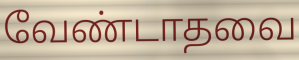
வேண்டாதவை